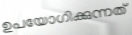
ഉപയോഗിക്കുന്നത്